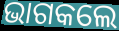
ଭାଗକଲେ